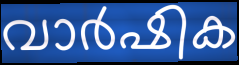
വാർഷിക